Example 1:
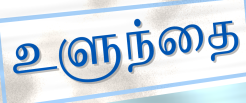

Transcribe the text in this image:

உளுந்தை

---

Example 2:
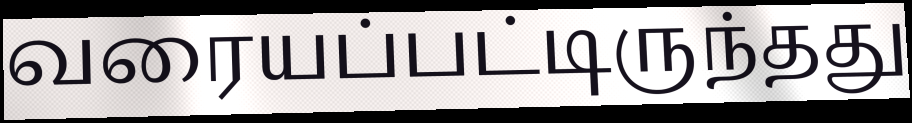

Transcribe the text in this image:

வரையப்பட்டிருந்தது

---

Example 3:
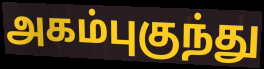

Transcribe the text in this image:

அகம்புகுந்து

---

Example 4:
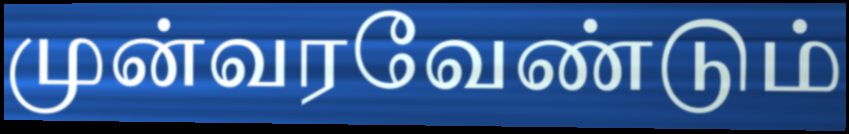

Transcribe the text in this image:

முன்வரவேண்டும்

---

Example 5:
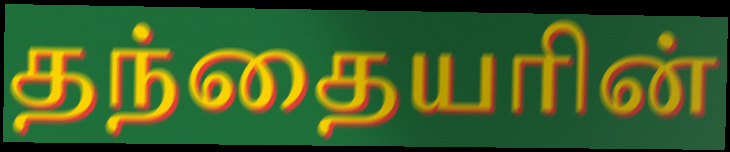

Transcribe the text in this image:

தந்தையரின்